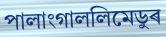
পালাংগাললিমেডুৰ